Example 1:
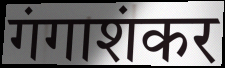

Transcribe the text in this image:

गंगाशंकर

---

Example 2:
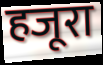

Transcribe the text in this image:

हजूरा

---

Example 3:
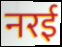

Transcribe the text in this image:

नरई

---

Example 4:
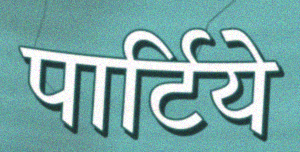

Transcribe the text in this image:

पार्टिये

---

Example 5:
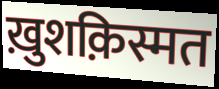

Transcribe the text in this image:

ख़ुशक़िस्मत